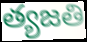
త్యజతి